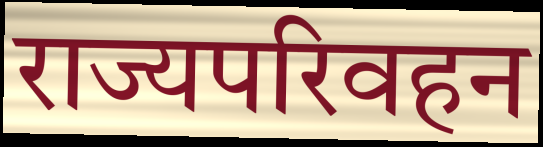
राज्यपरिवहन